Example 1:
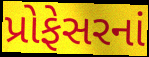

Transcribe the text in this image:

પ્રોફેસરનાં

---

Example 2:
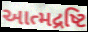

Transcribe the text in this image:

આત્મદ્રષ્ટિ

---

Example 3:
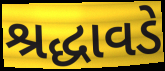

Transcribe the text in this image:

શ્રદ્ધાવડે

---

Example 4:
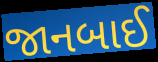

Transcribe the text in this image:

જાનબાઈ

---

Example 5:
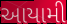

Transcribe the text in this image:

આયામી